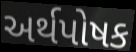
અર્થપોષક